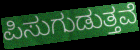
ಪಿಸುಗುಡುತ್ತವೆ